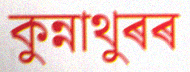
কুন্নাথুৰৰ